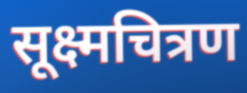
सूक्ष्मचित्रण